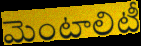
మెంటాలిటీ